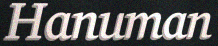
Hanuman